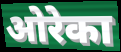
ओरेका